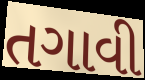
તગાવી